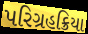
પરિગ્રહક્રિયા